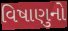
વિષાણુનો